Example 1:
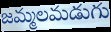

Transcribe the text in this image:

జమ్మలమడుగు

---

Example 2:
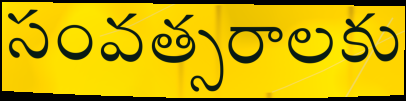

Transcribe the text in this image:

సంవత్సరాలకు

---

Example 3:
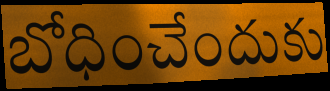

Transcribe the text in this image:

బోధించేందుకు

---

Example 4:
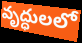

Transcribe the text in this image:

వృద్ధులలో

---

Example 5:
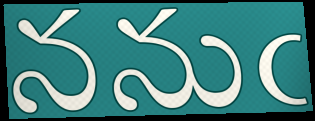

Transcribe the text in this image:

ననుఁ